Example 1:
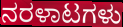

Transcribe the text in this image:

ನರಳಾಟಗಳು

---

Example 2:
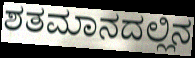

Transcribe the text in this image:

ಶತಮಾನದಲ್ಲಿನ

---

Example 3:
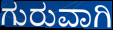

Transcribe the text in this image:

ಗುರುವಾಗಿ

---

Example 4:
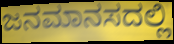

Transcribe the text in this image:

ಜನಮಾನಸದಲ್ಲಿ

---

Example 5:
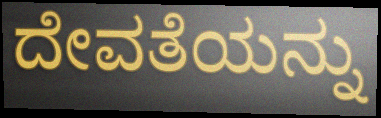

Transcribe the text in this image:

ದೇವತೆಯನ್ನು